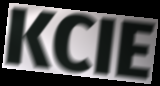
KCIE